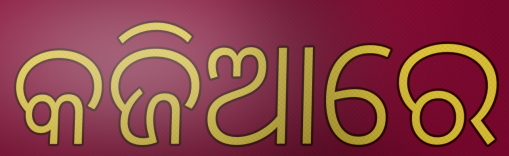
କଜିଆରେ